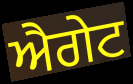
ਐਗੇਟ